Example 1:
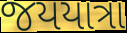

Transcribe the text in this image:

જયયાત્રા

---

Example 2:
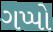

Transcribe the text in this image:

ગપ્પો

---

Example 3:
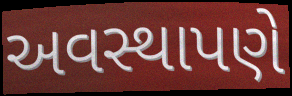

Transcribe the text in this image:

અવસ્થાપણે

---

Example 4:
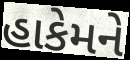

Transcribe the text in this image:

હાકેમને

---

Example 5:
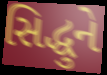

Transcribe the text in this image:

સિદ્ધુને